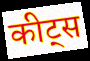
कीट्‌स